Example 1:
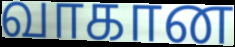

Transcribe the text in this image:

வாகான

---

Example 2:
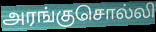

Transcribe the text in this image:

அரங்குசொல்லி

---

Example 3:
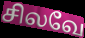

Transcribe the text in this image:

சிலவே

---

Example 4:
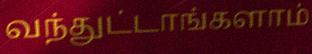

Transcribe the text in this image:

வந்துட்டாங்களாம்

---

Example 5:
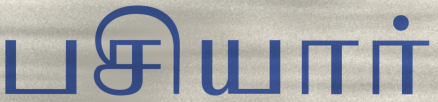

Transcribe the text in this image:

பசியார்